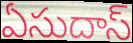
ఏసుదాస్